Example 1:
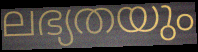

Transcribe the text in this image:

ലഭ്യതയും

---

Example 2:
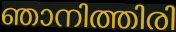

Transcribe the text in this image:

ഞാനിത്തിരി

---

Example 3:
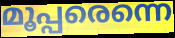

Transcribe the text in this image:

മൂപ്പരെന്നെ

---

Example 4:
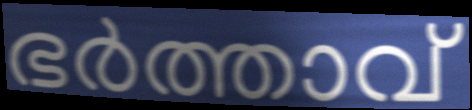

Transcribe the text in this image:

ഭർത്താവ്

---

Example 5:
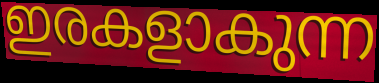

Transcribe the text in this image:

ഇരകളാകുന്ന